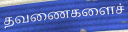
தவணைகளைச்